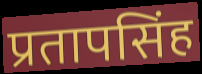
प्रतापसिंह